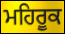
ਮਹਿਰੂਕ